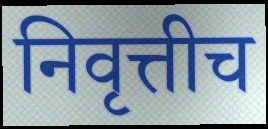
निवृत्तीच